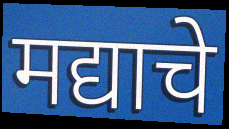
मद्याचे